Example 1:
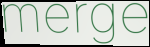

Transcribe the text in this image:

merge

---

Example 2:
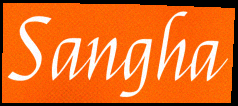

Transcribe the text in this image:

Sangha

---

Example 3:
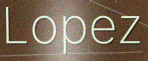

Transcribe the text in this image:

Lopez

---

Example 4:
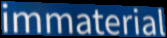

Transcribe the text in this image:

immaterial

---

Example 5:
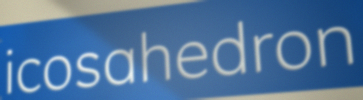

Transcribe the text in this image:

icosahedron